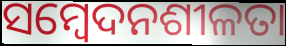
ସମ୍ଵେଦନଶୀଳତା